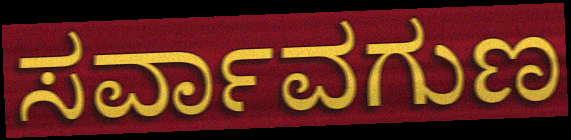
ಸರ್ವಾವಗುಣ